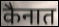
कैनात